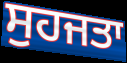
ਸੁਹਜਤਾ